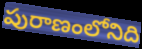
పురాణంలోనిది